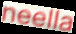
neella